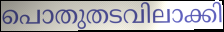
പൊതുതടവിലാക്കി